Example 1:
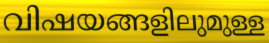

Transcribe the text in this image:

വിഷയങ്ങളിലുമുള്ള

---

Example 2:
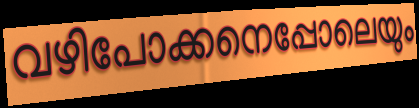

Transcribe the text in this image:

വഴിപോക്കനെപ്പോലെയും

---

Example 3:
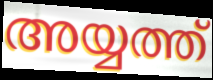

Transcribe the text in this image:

അയ്യത്ത്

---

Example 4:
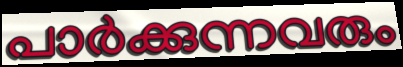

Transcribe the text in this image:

പാർക്കുന്നവരും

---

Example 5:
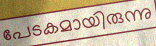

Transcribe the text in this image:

പേടകമായിരുന്നു